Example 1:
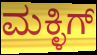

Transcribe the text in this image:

ಮಕ್ಳಿಗ್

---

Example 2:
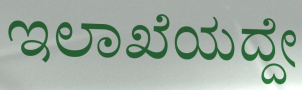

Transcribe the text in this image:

ಇಲಾಖೆಯದ್ದೇ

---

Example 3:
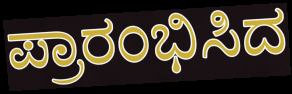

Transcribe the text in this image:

ಪ್ರಾರಂಭಿಸಿದ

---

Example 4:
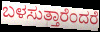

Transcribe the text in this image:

ಬಳಸುತ್ತಾರೆಂದರೆ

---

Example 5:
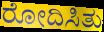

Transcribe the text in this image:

ರೋದಿಸಿತು